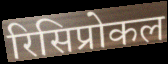
रिसिप्रोकल